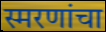
स्मरणांचा